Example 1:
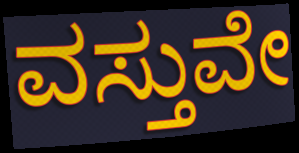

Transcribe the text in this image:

ವಸ್ತುವೇ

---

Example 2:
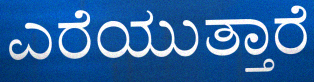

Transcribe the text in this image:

ಎರೆಯುತ್ತಾರೆ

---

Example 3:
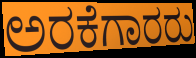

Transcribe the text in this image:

ಅರಕೆಗಾರರು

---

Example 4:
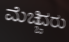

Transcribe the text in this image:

ಮೆಚ್ಚಿದರು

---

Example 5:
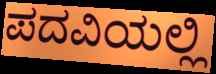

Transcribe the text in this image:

ಪದವಿಯಲ್ಲಿ